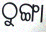
ଠୁଙ୍ଗା